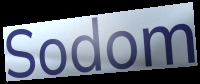
Sodom